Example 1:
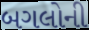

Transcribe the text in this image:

બગલોની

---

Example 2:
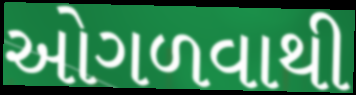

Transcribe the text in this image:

ઓગળવાથી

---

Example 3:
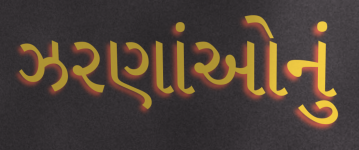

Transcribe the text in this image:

ઝરણાંઓનું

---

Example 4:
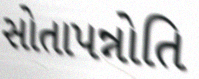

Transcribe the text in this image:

સોતાપન્નોતિ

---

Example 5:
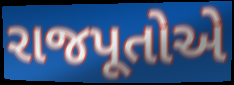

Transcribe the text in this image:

રાજપૂતોએ